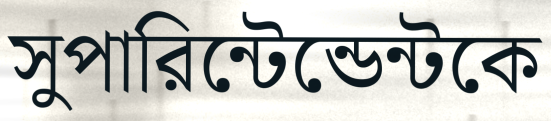
সুপারিন্টেন্ডেন্টকে